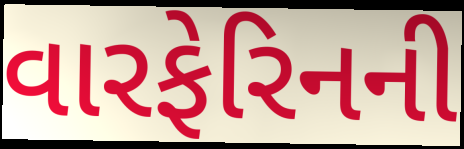
વારફેરિનની